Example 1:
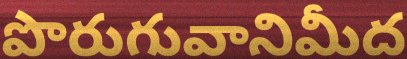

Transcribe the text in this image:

పొరుగువానిమీద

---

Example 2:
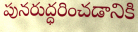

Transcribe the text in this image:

పునరుద్ధరించడానికి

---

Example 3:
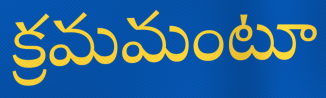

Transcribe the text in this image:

క్రమమంటూ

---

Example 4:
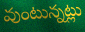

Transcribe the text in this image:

వుంటున్నట్లు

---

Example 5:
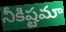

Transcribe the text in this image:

నీకిష్టమా